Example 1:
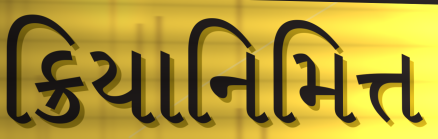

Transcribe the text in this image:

ક્રિયાનિમિત્ત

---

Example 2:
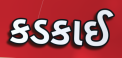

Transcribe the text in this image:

કડકાઈ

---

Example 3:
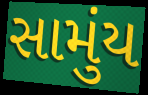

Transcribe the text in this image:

સામુંય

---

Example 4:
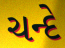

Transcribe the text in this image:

ચન્દે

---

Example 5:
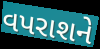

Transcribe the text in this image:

વપરાશને